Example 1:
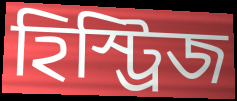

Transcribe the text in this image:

হিস্ট্রিজ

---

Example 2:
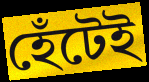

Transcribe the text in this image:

হেঁটেই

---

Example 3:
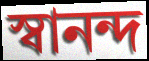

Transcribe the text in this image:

স্বানন্দ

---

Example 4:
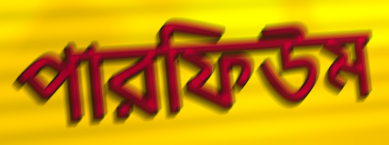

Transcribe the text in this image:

পারফিউম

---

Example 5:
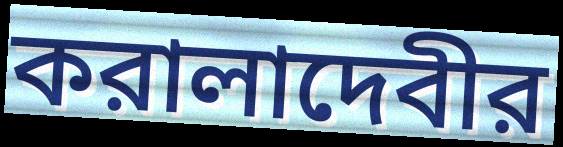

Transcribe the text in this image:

করালাদেবীর